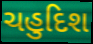
ચહુદિશ